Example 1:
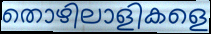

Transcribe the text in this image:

തൊഴിലാളികളെ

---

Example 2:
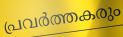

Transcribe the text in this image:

പ്രവർത്തകരും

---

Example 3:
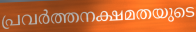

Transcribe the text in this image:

പ്രവർത്തനക്ഷമതയുടെ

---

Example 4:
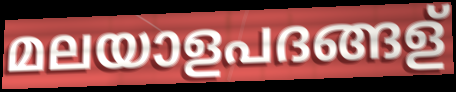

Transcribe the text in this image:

മലയാളപദങ്ങള്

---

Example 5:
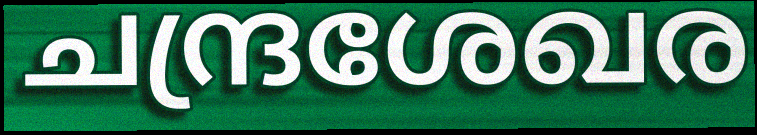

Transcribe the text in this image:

ചന്ദ്രശേഖര